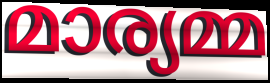
മാര്യമ്മ